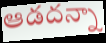
ఆడదన్నా